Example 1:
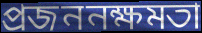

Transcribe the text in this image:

প্রজননক্ষমতা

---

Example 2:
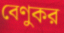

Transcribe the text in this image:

বেণুকর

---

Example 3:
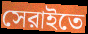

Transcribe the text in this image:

সেরাইতে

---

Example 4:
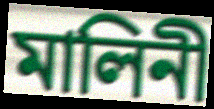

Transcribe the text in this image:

মালিনী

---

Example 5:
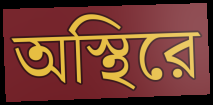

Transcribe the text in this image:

অস্থিরে